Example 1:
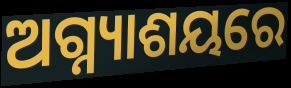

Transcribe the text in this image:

ଅଗ୍ନ୍ୟାଶୟରେ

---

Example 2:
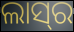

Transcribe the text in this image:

ଲାସ୍‍ର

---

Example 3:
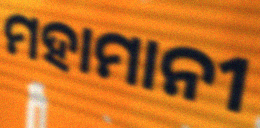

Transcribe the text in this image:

ମହାମାନୀ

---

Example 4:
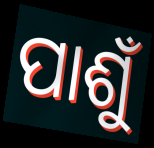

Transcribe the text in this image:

ପାଶୁଁ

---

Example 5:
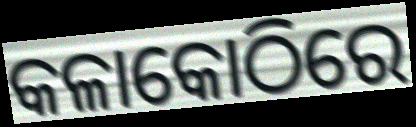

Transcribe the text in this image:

କଳାକୋଠିରେ